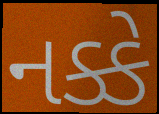
નક્કે